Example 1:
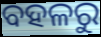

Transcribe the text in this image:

ବହଳରୁ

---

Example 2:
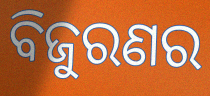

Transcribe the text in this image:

ବିଜୁରଣର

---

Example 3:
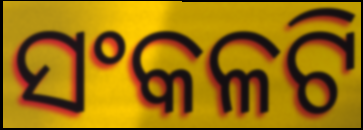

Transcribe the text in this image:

ସଂକଳଟି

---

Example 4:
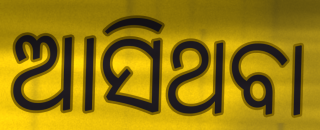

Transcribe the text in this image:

ଆସିଥବା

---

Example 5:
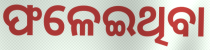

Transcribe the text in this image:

ଫଳେଇଥିବା